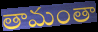
తామంతా